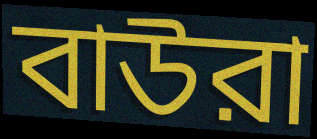
বাউরা